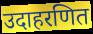
उदाहरणित